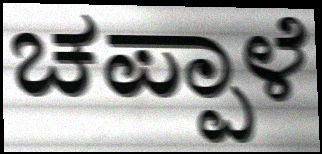
ಚಪ್ಪಾಳೆ